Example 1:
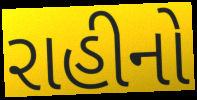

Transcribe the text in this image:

રાહીનો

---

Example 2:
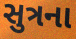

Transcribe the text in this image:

સુત્રના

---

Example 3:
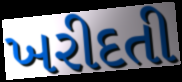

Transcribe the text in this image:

ખરીદતી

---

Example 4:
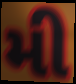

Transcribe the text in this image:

મી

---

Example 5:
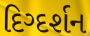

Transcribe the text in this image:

દિગ્દર્શન